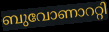
ബുവോണാററ്റി